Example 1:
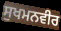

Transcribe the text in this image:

ਸੁਖਮਨਵੀਰ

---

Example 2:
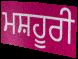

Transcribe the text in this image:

ਮਸ਼ਹੂਰੀ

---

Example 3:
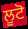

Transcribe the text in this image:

ਲੂਟੋ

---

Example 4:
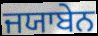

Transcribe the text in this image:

ਜਯਾਬੇਨ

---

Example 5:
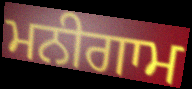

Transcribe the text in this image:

ਮਨੀਗਾਮ